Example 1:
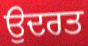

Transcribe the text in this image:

ਉਦਰਤ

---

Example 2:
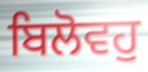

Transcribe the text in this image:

ਬਿਲੋਵਹੁ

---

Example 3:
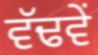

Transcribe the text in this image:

ਵੱਢਵੇਂ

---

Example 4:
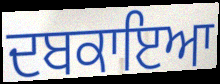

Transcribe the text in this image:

ਦਬਕਾਇਆ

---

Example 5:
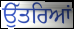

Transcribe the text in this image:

ਉੱਤਰਿਆਂ